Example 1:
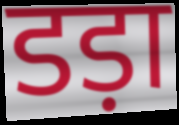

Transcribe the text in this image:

डड़ा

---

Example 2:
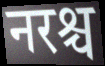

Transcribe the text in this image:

नरश्च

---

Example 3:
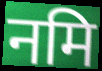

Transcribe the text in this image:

नमि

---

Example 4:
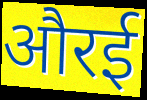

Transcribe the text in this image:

औरई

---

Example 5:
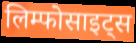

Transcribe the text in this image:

लिम्फोसाइट्स